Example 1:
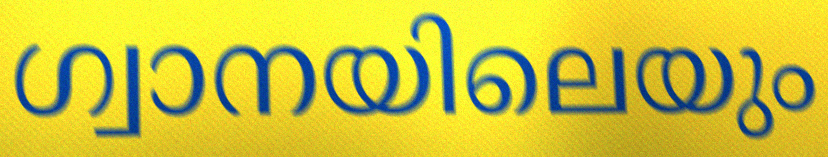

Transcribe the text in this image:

ഗ്വാനയിലെയും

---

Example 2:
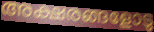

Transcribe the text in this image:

അക്ഷരങ്ങളോടു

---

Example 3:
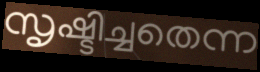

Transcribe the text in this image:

സൃഷ്ടിച്ചതെന്ന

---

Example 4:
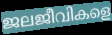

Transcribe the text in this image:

ജലജീവികളെ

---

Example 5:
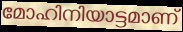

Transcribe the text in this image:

മോഹിനിയാട്ടമാണ്